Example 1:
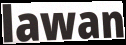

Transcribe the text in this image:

lawan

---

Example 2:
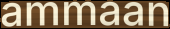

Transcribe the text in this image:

ammaan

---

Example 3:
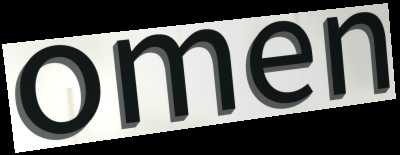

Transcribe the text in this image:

omen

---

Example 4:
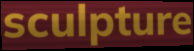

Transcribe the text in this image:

sculpture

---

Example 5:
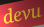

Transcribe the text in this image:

devu